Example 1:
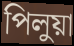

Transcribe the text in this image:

পিলুয়া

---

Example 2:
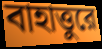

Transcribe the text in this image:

বাহাত্তুরে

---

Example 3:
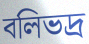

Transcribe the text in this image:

বলিভদ্র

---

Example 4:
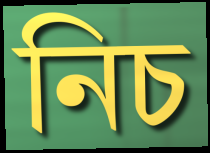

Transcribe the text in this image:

নিচ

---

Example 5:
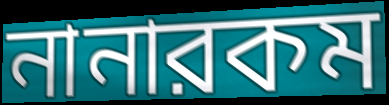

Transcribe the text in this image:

নানারকম